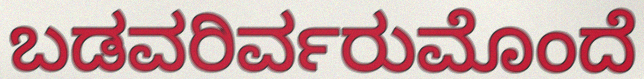
ಬಡವರಿರ್ವರುಮೊಂದೆ